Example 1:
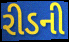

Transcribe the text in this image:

રીડની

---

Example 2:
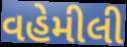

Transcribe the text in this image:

વહેમીલી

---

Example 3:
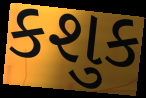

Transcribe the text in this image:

કશુક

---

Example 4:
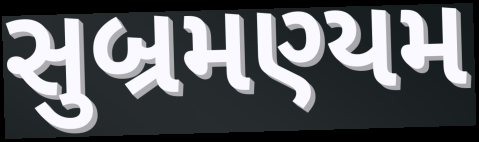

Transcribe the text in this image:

સુબ્રમણ્યમ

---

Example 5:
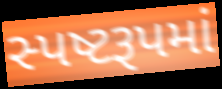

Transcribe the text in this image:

સ્પષ્ટરૂપમાં